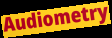
Audiometry